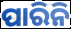
ପାରିନି